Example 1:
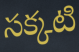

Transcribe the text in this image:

సక్కటి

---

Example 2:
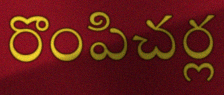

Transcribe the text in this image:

రొంపిచర్ల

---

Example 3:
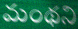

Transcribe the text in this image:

మంథని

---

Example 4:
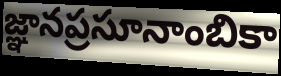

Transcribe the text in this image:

జ్ఞానప్రసూనాంబికా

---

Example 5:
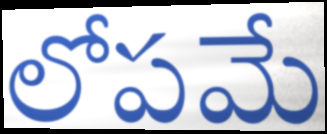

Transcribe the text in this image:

లోపమే